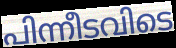
പിന്നീടവിടെ